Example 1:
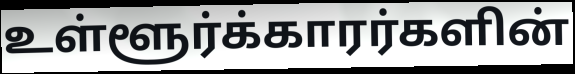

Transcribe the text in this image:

உள்ளூர்க்காரர்களின்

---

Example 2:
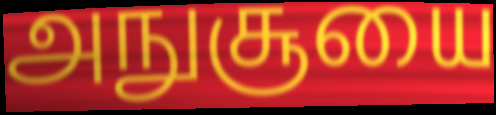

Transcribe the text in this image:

அநுசூயை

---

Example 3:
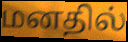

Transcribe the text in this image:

மனதில்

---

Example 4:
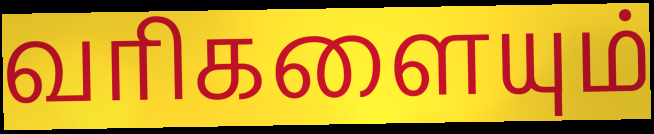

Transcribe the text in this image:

வரிகளையும்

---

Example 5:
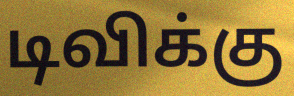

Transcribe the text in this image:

டிவிக்கு